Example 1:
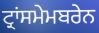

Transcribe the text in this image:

ਟ੍ਰਾਂਸਮੇਮਬਰੇਨ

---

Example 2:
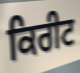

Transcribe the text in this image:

ਕਿਰੀਟ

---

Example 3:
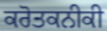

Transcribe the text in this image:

ਕਰੋਤਕਨੀਕੀ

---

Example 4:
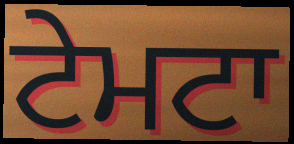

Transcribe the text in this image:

ਟੇਮਟਾ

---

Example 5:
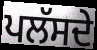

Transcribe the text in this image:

ਪਲੱਸਦੇ